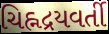
ચિહ્નદ્રયવર્તી